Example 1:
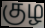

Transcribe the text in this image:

குழ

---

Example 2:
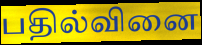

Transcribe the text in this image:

பதில்வினை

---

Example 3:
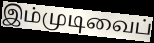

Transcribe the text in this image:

இம்முடிவைப்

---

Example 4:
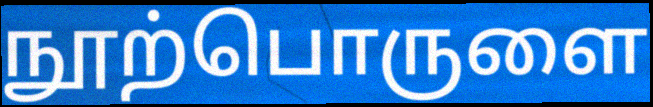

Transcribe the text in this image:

நூற்பொருளை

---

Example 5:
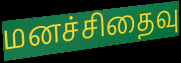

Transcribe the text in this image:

மனச்சிதைவு